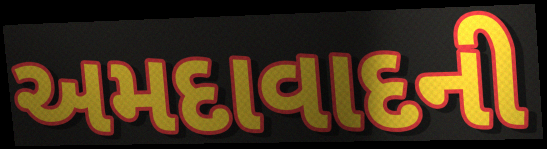
અમદાવાદની